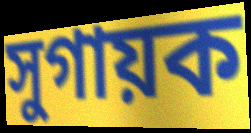
সুগায়ক